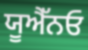
ਯੂਐੱਨਓ